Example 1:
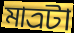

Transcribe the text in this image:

মাত্রটা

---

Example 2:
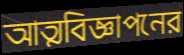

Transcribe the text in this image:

আত্মবিজ্ঞাপনের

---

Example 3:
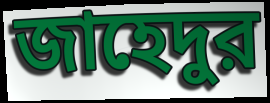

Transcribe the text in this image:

জাহেদুর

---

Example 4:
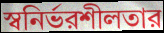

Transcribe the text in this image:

স্বনির্ভরশীলতার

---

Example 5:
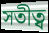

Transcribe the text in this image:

সতীত্ব